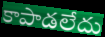
కాపాడలేదు